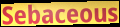
Sebaceous